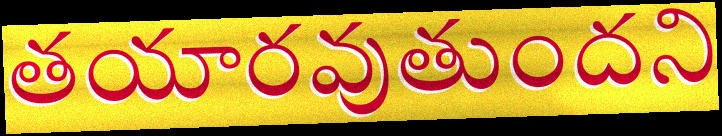
తయారవుతుందని